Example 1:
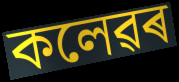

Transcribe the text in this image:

কলেৱৰ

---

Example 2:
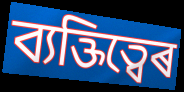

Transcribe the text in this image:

ব্যক্তিত্বেৰ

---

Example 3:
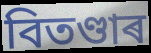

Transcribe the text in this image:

বিতণ্ডাৰ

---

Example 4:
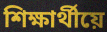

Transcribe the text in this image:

শিক্ষাৰ্থীয়ে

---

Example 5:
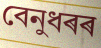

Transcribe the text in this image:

বেনুধৰৰ